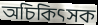
অচিকিৎসক